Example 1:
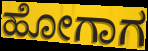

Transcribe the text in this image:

ಹೋಗಾಗ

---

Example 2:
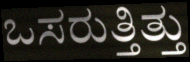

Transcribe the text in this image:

ಒಸರುತ್ತಿತ್ತು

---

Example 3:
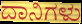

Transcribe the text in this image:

ದಾನಿಗಳು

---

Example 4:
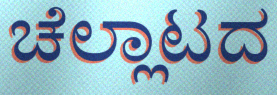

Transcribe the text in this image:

ಚೆಲ್ಲಾಟದ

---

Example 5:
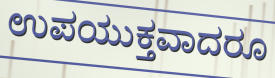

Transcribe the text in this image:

ಉಪಯುಕ್ತವಾದರೂ